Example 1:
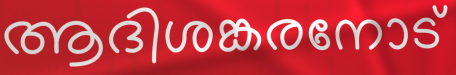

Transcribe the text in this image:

ആദിശങ്കരനോട്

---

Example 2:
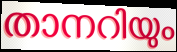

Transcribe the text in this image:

താനറിയും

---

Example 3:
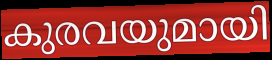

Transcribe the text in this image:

കുരവയുമായി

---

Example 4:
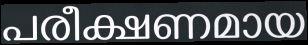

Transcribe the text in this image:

പരീക്ഷണമായ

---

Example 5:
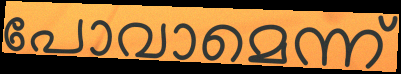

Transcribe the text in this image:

പോവാമെന്ന്